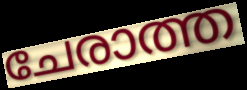
ചേരാത്ത